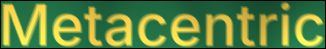
Metacentric